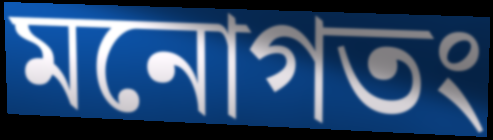
মনোগতং